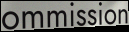
ommission